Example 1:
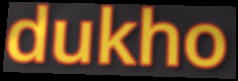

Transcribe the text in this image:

dukho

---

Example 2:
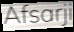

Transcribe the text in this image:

Afsarji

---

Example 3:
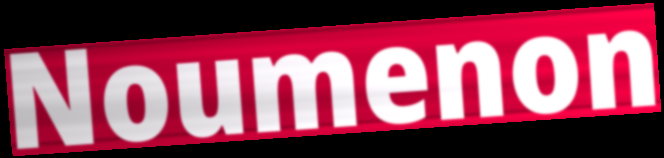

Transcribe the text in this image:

Noumenon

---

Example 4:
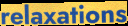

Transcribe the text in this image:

relaxations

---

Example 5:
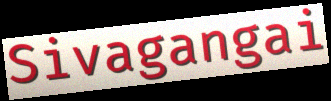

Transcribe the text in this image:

Sivagangai